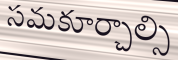
సమకూర్చాల్సి